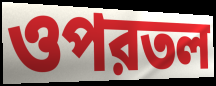
ওপরতল